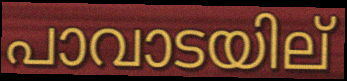
പാവാടയില്